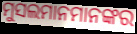
ମୁସଲମାନମାନଙ୍କର